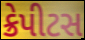
ક્રેપીટસ